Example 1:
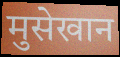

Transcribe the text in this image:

मुसेखान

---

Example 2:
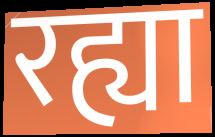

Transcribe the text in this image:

रह्या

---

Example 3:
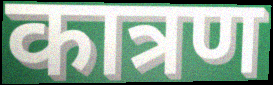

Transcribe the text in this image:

कात्रण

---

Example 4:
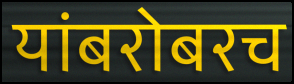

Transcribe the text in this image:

यांबरोबरच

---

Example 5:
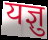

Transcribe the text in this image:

यज्ञु